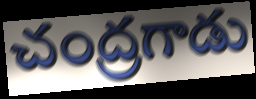
చంద్రగాడు